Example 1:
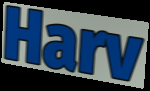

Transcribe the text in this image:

Harv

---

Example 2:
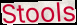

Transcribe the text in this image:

Stools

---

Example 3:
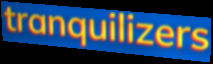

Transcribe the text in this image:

tranquilizers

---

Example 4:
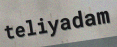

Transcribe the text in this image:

teliyadam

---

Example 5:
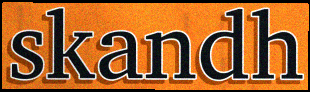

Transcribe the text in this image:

skandh